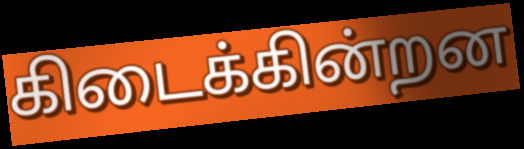
கிடைக்கின்றன